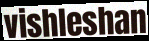
vishleshan